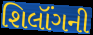
શિલૉંગની